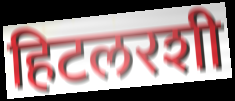
हिटलरशी